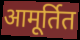
आमूर्तित